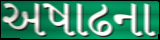
અષાઢના